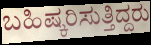
ಬಹಿಷ್ಕರಿಸುತ್ತಿದ್ದರು